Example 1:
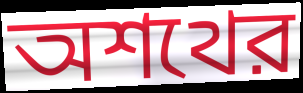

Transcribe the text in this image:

অশথের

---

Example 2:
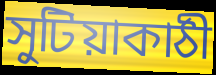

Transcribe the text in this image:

সুটিয়াকাঠী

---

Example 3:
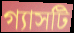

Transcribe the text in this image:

গ্যাসটি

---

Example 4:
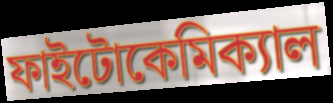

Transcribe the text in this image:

ফাইটোকেমিক্যাল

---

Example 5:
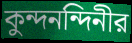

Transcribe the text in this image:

কুন্দনন্দিনীর